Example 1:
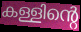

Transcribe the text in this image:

കള്ളിന്റെ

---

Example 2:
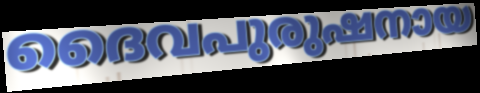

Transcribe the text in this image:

ദൈവപുരുഷനായ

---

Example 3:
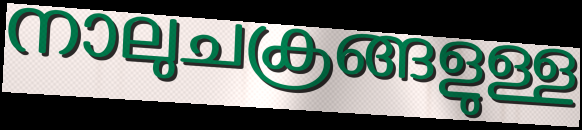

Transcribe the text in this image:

നാലുചക്രങ്ങളുള്ള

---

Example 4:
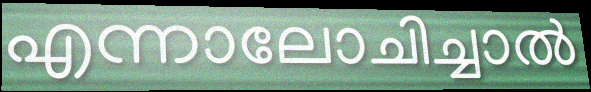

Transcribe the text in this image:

എന്നാലോചിച്ചാൽ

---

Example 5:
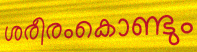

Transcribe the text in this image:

ശരീരംകൊണ്ടും